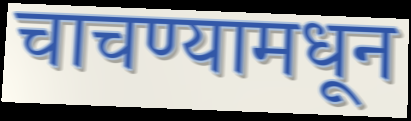
चाचण्यामधून